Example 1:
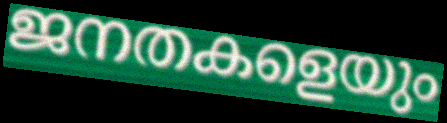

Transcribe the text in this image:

ജനതകളെയും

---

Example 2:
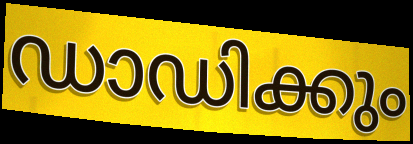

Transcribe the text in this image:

ഡാഡിക്കും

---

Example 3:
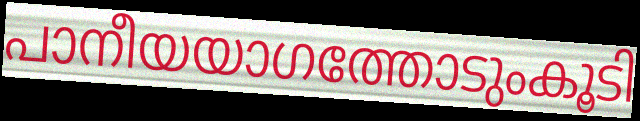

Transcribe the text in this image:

പാനീയയാഗത്തോടുംകൂടി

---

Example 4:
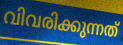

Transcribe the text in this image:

വിവരിക്കുന്നത്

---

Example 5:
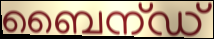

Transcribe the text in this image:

ബൈന്ഡ്